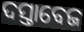
ଦସ୍ତାବେଜ